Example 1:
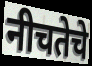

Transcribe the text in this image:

नीचतेचे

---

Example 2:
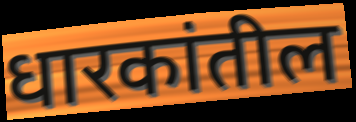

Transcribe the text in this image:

धारकांतील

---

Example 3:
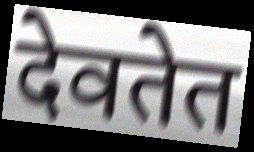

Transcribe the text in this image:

देवतेत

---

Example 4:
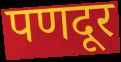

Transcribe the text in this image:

पणदूर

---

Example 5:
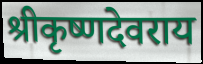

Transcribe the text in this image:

श्रीकृष्णदेवराय